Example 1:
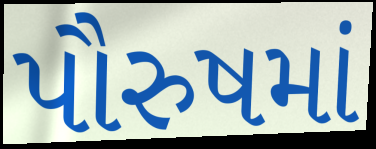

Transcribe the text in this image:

પૌરુષમાં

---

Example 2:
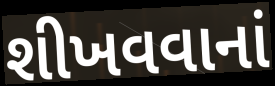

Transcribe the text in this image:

શીખવવાનાં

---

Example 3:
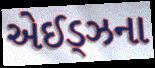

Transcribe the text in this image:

એઈડ્ઝના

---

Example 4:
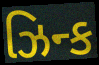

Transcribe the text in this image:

ઝિન્ક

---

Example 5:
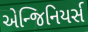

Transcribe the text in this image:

એન્જિનિયર્સ